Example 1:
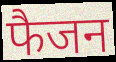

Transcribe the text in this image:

फैजन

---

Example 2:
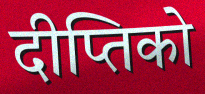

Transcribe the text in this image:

दीप्तिको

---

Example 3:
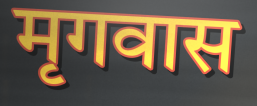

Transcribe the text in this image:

मृगवास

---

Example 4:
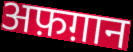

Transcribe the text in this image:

अफ़ग़ान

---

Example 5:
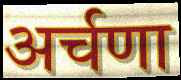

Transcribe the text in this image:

अर्चणा